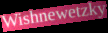
Wishnewetzky